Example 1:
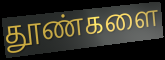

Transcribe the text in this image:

தூண்களை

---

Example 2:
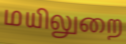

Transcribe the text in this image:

மயிலுறை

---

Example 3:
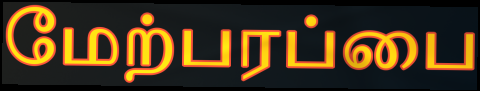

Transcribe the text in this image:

மேற்பரப்பை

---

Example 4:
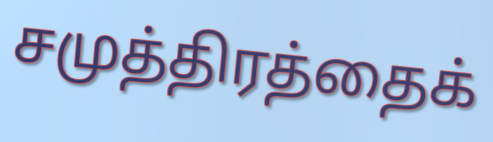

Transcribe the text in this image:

சமுத்திரத்தைக்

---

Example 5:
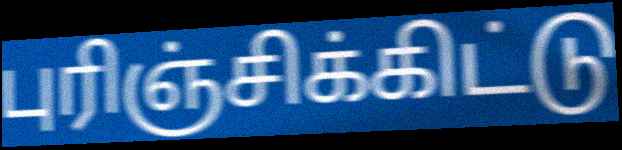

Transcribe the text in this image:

புரிஞ்சிக்கிட்டு